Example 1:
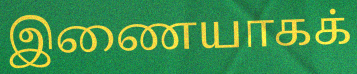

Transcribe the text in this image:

இணையாகக்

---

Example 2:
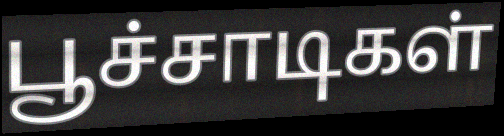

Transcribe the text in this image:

பூச்சாடிகள்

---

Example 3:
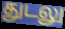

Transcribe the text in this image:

துடலு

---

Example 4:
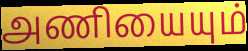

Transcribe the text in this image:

அணியையும்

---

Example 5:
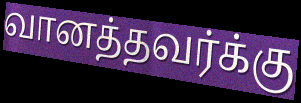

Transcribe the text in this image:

வானத்தவர்க்கு